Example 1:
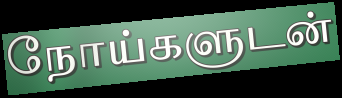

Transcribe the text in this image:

நோய்களுடன்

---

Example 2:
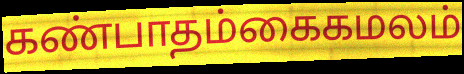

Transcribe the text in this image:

கண்பாதம்கைகமலம்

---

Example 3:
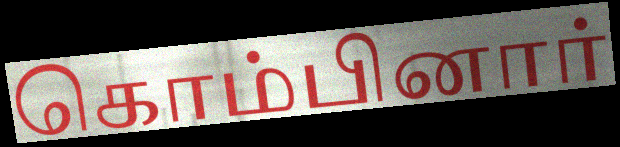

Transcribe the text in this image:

கொம்பினார்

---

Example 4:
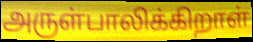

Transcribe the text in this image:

அருள்பாலிக்கிறாள்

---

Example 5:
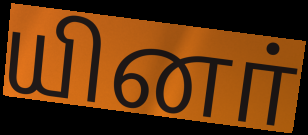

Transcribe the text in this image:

யினர்